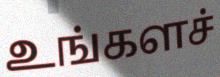
உங்களச்